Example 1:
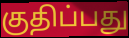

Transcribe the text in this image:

குதிப்பது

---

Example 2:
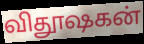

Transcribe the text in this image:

விதூஷகன்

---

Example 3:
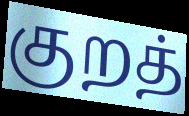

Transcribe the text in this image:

குறத்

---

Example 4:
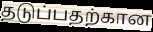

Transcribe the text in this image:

தடுப்பதற்கான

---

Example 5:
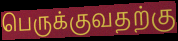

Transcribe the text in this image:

பெருக்குவதற்கு